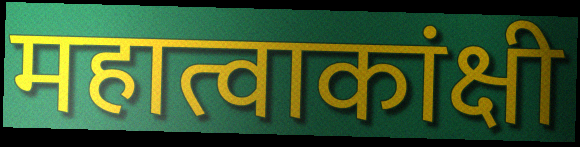
महात्वाकांक्षी